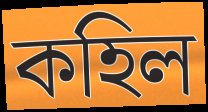
কহিল